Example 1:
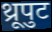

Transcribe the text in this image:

थ्रूपुट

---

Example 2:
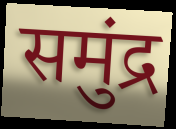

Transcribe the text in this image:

समुंद्र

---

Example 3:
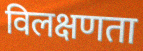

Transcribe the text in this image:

विलक्षणता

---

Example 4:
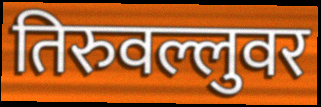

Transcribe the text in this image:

तिरुवल्लुवर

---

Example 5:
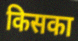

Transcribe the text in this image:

किसका